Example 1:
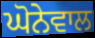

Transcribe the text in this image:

ਘੋਨੇਵਾਲ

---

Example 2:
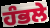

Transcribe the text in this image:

ਹੰਭਲੇ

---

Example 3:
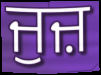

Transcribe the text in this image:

ਜੁਜ਼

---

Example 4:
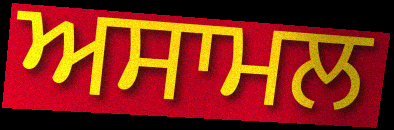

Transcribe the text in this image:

ਅਸਾਮਲ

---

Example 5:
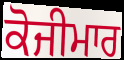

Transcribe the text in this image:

ਕੋਜੀਮਾਰ